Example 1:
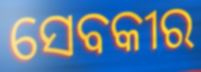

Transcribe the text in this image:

ସେବକୀର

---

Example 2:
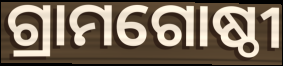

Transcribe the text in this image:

ଗ୍ରାମଗୋଷ୍ଠୀ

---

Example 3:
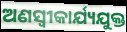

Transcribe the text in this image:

ଅଣସ୍ବୀକାର୍ଯ୍ୟଯୁକ୍ତ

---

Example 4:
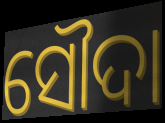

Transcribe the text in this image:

ସୌଦା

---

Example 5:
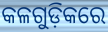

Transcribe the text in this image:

କଳଗୁଡ଼ିକରେ